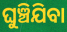
ଘୁଞ୍ଚିଯିବା